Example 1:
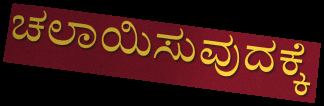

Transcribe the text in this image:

ಚಲಾಯಿಸುವುದಕ್ಕೆ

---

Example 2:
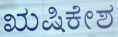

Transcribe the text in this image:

ಋಷಿಕೇಶ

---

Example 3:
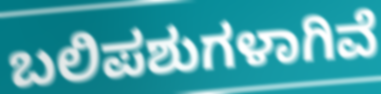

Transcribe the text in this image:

ಬಲಿಪಶುಗಳಾಗಿವೆ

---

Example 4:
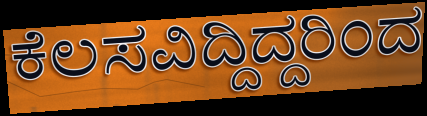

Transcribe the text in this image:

ಕೆಲಸವಿದ್ದಿದ್ದರಿಂದ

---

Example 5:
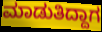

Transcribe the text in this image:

ಮಾಡುತಿದ್ದಾಗ